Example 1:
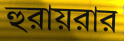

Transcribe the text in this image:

হুরায়রার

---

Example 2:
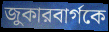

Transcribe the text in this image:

জুকারবার্গকে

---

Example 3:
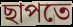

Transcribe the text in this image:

ছাপতে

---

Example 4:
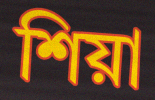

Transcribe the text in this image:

শিয়া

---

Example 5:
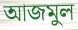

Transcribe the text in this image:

আজমুল